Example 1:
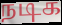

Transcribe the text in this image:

நடிக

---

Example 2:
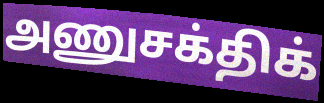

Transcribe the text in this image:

அணுசக்திக்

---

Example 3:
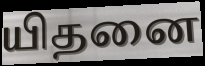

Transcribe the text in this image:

யிதனை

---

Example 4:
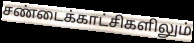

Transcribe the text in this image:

சண்டைக்காட்சிகளிலும்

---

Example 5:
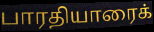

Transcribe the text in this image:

பாரதியாரைக்